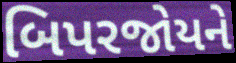
બિપરજોયને